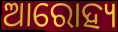
ଆରୋହ୍ୟ